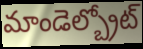
మాండెల్బ్రోట్